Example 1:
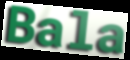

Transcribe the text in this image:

Bala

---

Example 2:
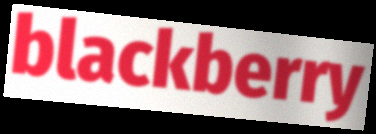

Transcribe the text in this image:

blackberry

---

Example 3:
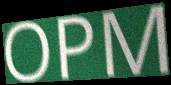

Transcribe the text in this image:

OPM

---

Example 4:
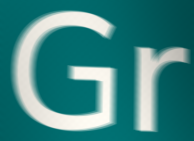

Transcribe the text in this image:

Gr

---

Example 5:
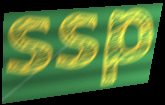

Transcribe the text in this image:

ssp